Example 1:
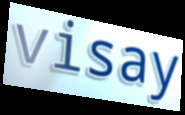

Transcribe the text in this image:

visay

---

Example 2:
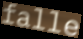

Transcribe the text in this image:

falle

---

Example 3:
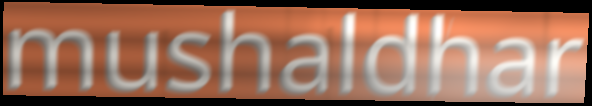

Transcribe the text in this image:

mushaldhar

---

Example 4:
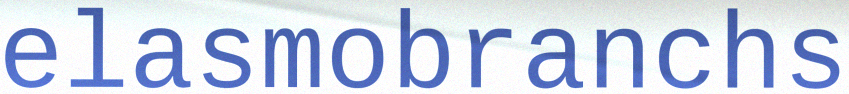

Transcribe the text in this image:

elasmobranchs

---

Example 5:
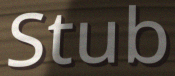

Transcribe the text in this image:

Stub